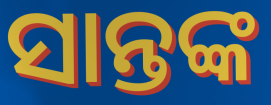
ସାନ୍ତଙ୍କ